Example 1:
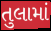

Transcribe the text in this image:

તુલામાં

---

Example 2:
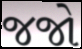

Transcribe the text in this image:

જજો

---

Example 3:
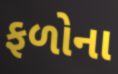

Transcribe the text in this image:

ફળોના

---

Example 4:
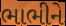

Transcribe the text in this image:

ભાભીને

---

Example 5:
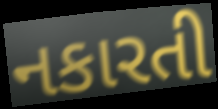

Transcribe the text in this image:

નકારતી